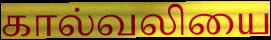
கால்வலியை